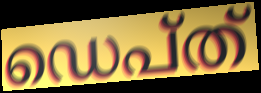
ഡെപ്ത്